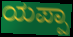
ಯಪ್ಪಾ